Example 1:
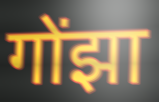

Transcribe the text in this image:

गोंझा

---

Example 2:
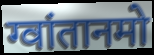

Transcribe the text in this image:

ग्वांतानमो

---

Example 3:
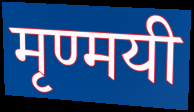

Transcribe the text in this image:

मृण्मयी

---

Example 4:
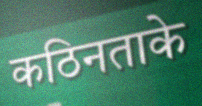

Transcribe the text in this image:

कठिनताके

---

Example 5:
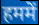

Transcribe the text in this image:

हममें